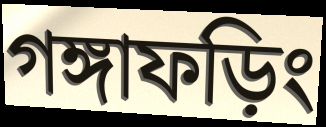
গঙ্গাফড়িং